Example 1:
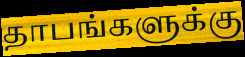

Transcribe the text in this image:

தாபங்களுக்கு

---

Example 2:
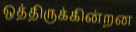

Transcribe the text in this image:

ஒத்திருக்கின்றன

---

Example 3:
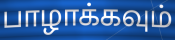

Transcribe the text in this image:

பாழாக்கவும்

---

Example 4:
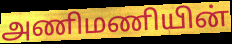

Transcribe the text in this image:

அணிமணியின்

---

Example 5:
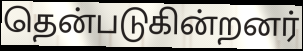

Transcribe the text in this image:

தென்படுகின்றனர்